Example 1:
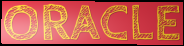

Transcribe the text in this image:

ORACLE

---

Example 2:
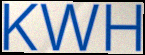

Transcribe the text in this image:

KWH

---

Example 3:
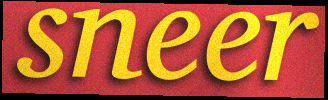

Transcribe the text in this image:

sneer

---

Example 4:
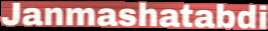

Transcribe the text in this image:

Janmashatabdi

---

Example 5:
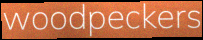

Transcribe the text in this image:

woodpeckers